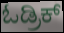
ಓಡ್ರಿಕ್